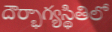
దౌర్భాగ్యస్థితిలో